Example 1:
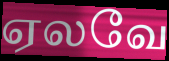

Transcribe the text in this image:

ஏலவே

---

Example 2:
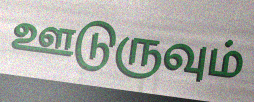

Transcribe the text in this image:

ஊடுருவும்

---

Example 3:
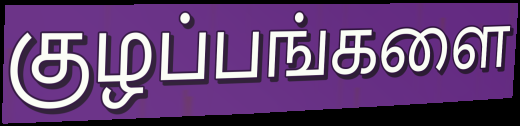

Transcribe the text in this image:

குழப்பங்களை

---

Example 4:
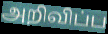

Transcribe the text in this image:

அறிவிப்ப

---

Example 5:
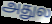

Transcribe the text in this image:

அதுல